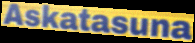
Askatasuna